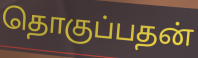
தொகுப்பதன்